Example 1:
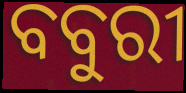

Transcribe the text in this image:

ବବୁରୀ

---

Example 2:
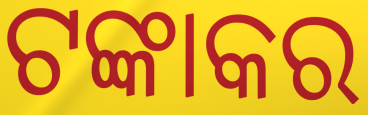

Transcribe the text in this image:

ଟଙ୍କାକର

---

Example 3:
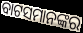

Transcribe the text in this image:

ବାଟସମାନଙ୍କର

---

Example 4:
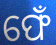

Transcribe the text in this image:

ଫେଁ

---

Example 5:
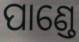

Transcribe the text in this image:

ପାଣ୍ଡେ